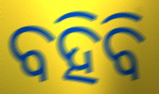
ବହିବି